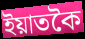
ইয়াতকৈ